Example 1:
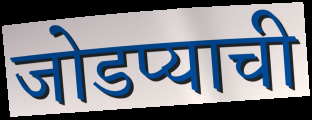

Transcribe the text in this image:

जोडप्याची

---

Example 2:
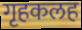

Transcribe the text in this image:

गृहकलह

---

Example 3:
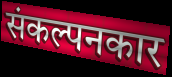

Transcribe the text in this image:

संकल्पनकार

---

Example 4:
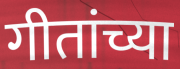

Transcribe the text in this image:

गीतांच्या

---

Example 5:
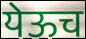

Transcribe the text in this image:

येऊच